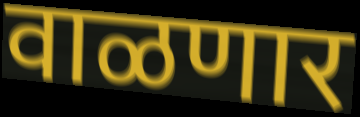
वाळणार